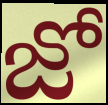
జో